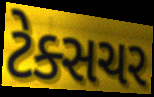
ટેક્સચર